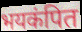
भयकंपित